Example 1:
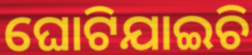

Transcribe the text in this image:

ଘୋଟିଯାଇଚି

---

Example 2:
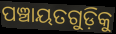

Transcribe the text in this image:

ପଞ୍ଚାୟତଗୁଡ଼ିକୁ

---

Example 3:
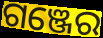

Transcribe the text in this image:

ଗଞ୍ଜେର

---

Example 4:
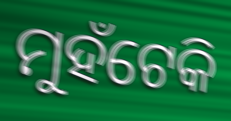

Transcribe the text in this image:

ମୁହଁଟେକି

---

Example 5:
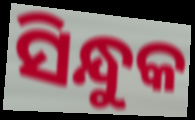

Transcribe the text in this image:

ସିନ୍ଧୁକ